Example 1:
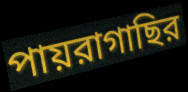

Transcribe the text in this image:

পায়রাগাছির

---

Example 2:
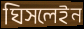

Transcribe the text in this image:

ঘিসলেইন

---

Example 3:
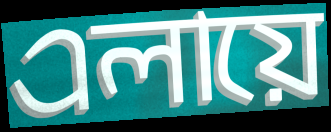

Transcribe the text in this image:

এলায়ে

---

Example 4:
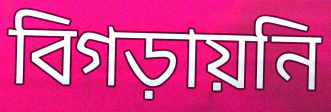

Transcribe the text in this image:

বিগড়ায়নি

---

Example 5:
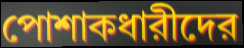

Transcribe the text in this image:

পোশাকধারীদের